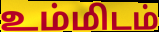
உம்மிடம்